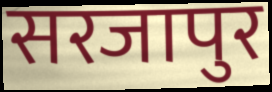
सरजापुर